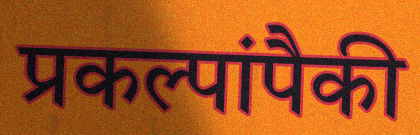
प्रकल्पांपैकी